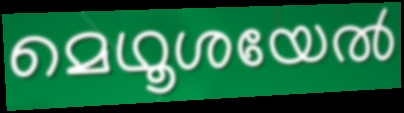
മെഥൂശയേൽ